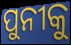
ପୁନୀକୁ